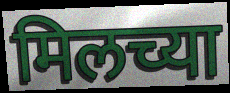
मिलच्या